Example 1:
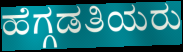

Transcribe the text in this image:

ಹೆಗ್ಗಡತಿಯರು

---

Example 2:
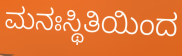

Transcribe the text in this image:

ಮನಃಸ್ಥಿತಿಯಿಂದ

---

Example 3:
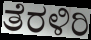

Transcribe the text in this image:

ತೆರಳಿರಿ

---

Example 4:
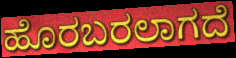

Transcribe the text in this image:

ಹೊರಬರಲಾಗದೆ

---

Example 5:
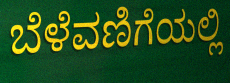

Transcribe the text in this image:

ಬೆಳೆವಣಿಗೆಯಲ್ಲಿ